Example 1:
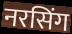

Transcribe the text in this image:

नरसिंग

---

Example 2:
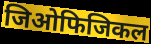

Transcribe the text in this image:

जिओफिजिकल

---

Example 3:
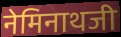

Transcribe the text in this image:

नेमिनाथजी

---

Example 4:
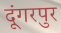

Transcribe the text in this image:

दूंगरपुर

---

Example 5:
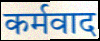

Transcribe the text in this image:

कर्मवाद